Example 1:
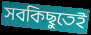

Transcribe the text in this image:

সবকিছুতেই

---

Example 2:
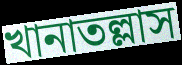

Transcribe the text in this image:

খানাতল্লাস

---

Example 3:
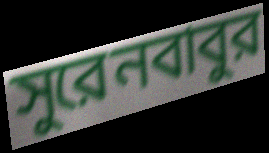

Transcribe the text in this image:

সুরেনবাবুর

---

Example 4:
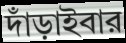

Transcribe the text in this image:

দাঁড়াইবার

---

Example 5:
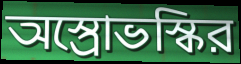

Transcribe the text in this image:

অস্ত্রোভস্কির